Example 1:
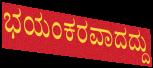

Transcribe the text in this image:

ಭಯಂಕರವಾದದ್ದು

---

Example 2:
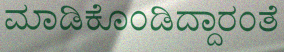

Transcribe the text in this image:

ಮಾಡಿಕೊಂಡಿದ್ದಾರಂತೆ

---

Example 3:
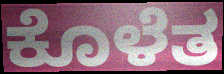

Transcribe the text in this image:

ಕೊಳೆತ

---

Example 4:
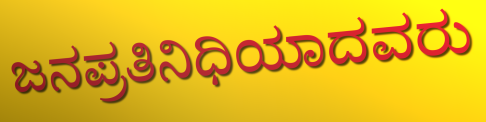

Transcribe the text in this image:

ಜನಪ್ರತಿನಿಧಿಯಾದವರು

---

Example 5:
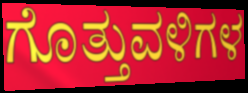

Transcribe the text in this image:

ಗೊತ್ತುವಳಿಗಳ